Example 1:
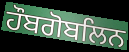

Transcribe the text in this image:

ਹੌਬਗੋਬਲਿਨ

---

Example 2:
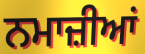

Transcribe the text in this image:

ਨਮਾਜ਼ੀਆਂ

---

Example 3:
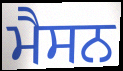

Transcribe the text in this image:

ਮੈਸਨ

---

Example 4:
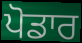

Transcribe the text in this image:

ਪੋਡਾਰ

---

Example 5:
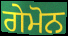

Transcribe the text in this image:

ਗੇਮੋਨ